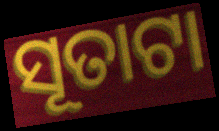
ସୂତାଟା